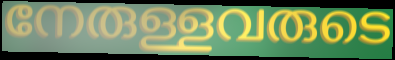
നേരുള്ളവരുടെ